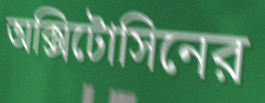
অক্সিটোসিনের